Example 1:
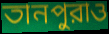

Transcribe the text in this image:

তানপুরাও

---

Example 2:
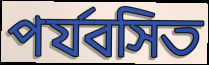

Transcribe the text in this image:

পর্যবসিত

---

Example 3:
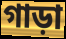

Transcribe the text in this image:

গাড়া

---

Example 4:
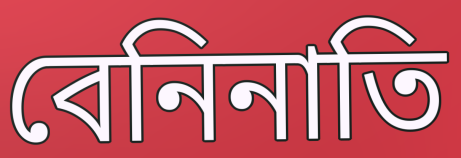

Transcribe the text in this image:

বেনিনাতি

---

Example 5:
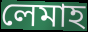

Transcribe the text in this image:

লেমাহ